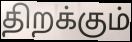
திறக்கும்